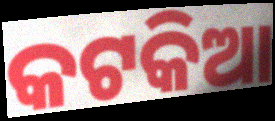
କଟକିଆ